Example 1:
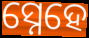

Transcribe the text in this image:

ସ୍ନେହେ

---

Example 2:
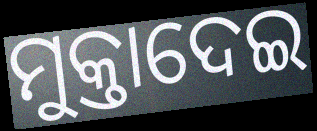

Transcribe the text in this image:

ମୁକ୍ତାଦେଇ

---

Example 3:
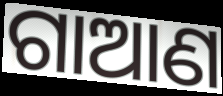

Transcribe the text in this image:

ଗାଆଣ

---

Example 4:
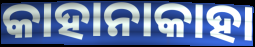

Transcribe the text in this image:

କାହାନାକାହା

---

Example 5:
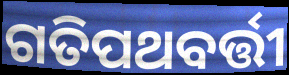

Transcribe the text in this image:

ଗତିପଥବର୍ତ୍ତୀ